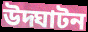
উদ্ঘাটন